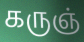
கருஞ்